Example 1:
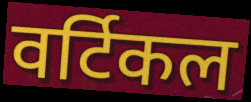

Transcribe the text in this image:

वर्टिकल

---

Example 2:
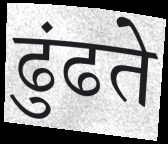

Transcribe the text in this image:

ढुंढते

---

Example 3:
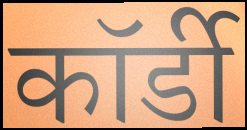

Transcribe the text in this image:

कॉर्डी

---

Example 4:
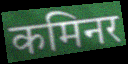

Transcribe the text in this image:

कमिनर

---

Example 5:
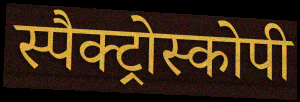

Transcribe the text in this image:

स्पैक्ट्रोस्कोपी